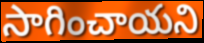
సాగించాయని